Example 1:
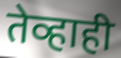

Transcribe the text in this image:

तेव्हाही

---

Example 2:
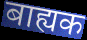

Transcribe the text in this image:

बाह्यक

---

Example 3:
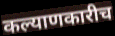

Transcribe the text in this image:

कल्याणकारीच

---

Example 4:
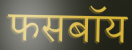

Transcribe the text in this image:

फसबॉय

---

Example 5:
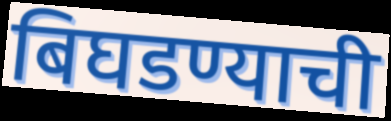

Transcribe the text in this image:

बिघडण्याची